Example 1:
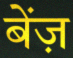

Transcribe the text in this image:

बेंज़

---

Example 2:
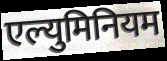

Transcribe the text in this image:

एल्युमिनियम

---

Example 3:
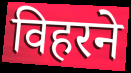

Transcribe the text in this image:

विहरने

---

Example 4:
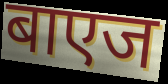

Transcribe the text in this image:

बाएज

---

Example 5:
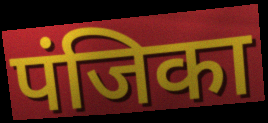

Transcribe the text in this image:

पंजिका